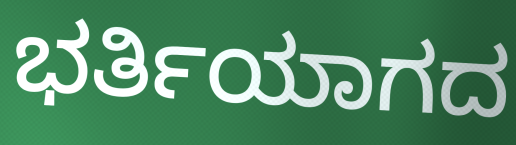
ಭರ್ತಿಯಾಗದ